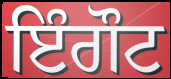
ਇੰਗੌਟ